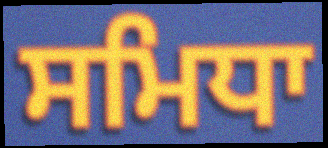
ਸਮਿਧਾ